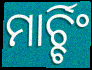
ମାର୍ଚ୍ଚିଂ